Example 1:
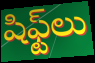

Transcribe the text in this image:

షిఫ్ట్‌లు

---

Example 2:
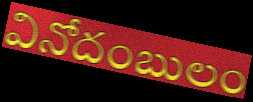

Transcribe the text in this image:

వినోదంబులం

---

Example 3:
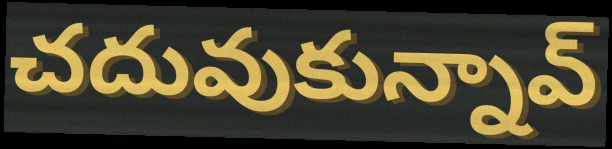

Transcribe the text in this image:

చదువుకున్నావ్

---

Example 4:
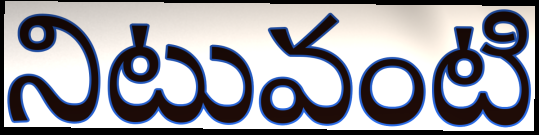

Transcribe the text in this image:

నిటువంటి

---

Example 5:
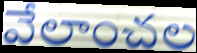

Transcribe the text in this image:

వేలాంచల